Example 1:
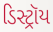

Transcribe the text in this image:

ડિસ્ટ્રૉય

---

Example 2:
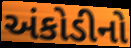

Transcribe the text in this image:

અંકોડીનો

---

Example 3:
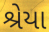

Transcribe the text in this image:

શ્રેયા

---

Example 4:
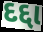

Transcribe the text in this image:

દદ્દા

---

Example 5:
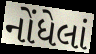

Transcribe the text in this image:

નોંધેલાં